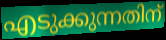
എടുക്കുന്നതിന്